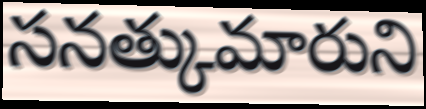
సనత్కుమారుని